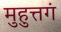
मुहुत्तगं